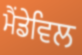
ਮੈਂਡੇਵਿਲ